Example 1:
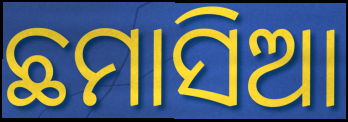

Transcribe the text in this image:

ଛମାସିଆ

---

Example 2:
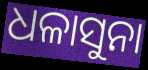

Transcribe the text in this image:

ଧଳାସୁନା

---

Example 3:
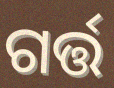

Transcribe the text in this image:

ଗର୍ତ୍ତ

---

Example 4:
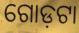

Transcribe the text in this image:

ଗୋଡ଼ଟା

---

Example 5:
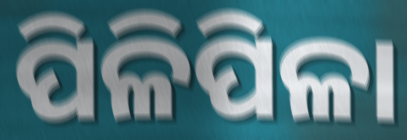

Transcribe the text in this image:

ପିଳିପିଳା